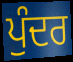
ਪੁੰਦਰ